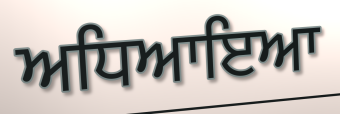
ਅਧਿਆਇਆ